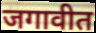
जगावीत